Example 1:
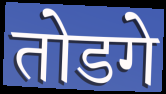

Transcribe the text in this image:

तोडगे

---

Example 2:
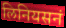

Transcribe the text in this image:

लिनियसनं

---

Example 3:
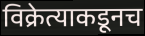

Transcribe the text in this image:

विक्रेत्याकडूनच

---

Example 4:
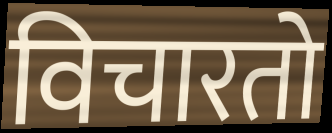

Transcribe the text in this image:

विचारतो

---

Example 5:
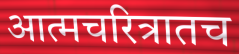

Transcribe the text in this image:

आत्मचरित्रातच